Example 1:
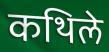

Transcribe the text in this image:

कथिले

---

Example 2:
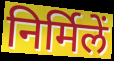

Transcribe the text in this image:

निर्मिलें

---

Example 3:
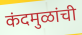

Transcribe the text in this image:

कंदमुळांची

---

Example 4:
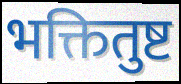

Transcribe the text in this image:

भक्तितुष्ट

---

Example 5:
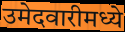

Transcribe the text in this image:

उमेदवारीमध्ये